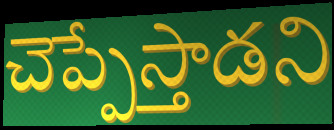
చెప్పేస్తాడని